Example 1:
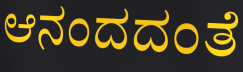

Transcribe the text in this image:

ಆನಂದದಂತೆ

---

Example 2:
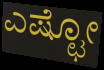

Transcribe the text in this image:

ಎಷ್ಟೋ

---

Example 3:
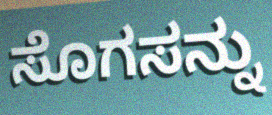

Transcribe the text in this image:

ಸೊಗಸನ್ನು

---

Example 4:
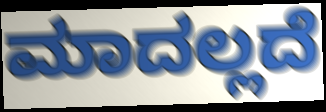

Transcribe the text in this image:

ಮಾದಲ್ಲದೆ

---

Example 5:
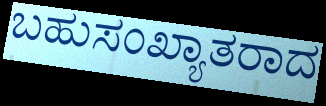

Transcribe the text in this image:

ಬಹುಸಂಖ್ಯಾತರಾದ